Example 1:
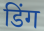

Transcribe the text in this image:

डिंग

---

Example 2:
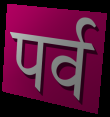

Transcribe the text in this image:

पर्व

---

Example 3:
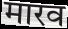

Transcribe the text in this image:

मारव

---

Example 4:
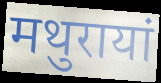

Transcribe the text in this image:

मथुरायां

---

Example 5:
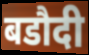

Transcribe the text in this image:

बडौदी